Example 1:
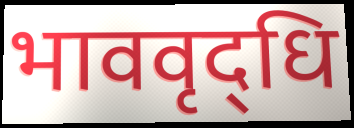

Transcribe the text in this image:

भाववृद्धि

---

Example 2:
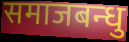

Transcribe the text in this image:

समाजबन्धु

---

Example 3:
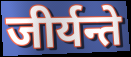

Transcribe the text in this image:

जीर्यन्ते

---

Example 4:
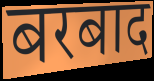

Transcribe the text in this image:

बरबाद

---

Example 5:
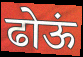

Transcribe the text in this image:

ढोऊं